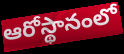
ఆరోస్థానంలో